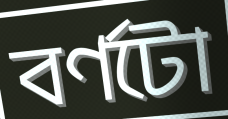
বৰ্ণটো